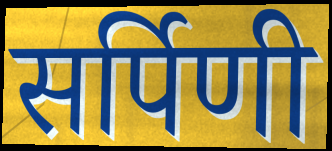
सर्पिणी